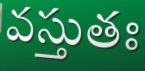
వస్తుతః